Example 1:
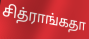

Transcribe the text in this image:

சித்ராங்கதா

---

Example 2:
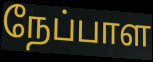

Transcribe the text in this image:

நேப்பாள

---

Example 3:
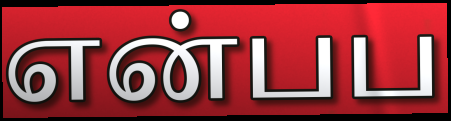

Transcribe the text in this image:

என்பப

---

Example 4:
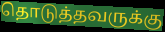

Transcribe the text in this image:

தொடுத்தவருக்கு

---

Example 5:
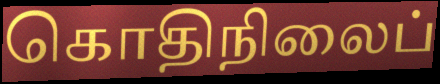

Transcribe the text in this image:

கொதிநிலைப்